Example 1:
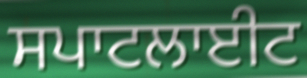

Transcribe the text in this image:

ਸਪਾਟਲਾਈਟ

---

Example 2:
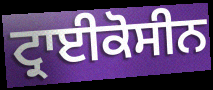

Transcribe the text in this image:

ਟ੍ਰਾਈਕੋਸੀਨ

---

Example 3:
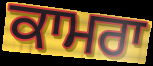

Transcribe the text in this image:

ਕਾਮਰਾ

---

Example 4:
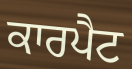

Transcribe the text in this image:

ਕਾਰਪੈਟ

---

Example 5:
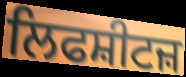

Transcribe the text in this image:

ਲਿਫਸ਼ੀਟਜ਼